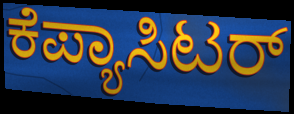
ಕೆಪ್ಯಾಸಿಟರ್